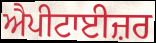
ਐਪੀਟਾਈਜ਼ਰ